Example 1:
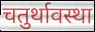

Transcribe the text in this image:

चतुर्थावस्था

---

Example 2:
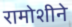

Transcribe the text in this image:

रामोशीने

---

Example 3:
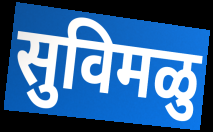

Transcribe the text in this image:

सुविमळु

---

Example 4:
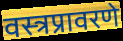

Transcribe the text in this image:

वस्त्रप्रावरणे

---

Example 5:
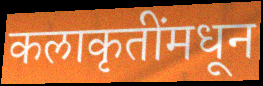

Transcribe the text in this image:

कलाकृतींमधून